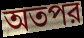
অতপর